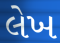
લેખ